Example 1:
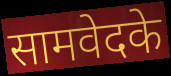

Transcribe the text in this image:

सामवेदके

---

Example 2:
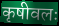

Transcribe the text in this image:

कृषीवलः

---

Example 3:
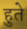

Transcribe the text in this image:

हुते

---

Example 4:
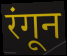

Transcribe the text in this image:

रंगून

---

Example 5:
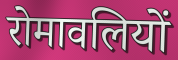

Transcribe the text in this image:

रोमावलियों